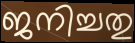
ജനിച്ചതു